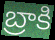
బ్రాకి